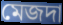
মেজদা